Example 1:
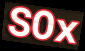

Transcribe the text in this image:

SOx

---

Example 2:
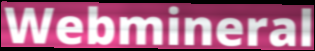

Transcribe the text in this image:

Webmineral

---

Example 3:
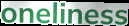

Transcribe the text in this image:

oneliness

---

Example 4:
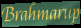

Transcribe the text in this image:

Brahmarup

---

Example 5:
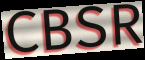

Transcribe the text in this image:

CBSR